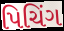
પિચિંગ